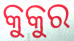
କୁକୁର